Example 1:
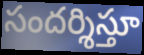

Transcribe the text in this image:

సందర్శిస్తూ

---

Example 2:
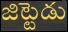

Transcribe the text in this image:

జిట్టెడు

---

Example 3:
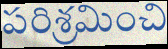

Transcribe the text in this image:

పరిశ్రమించి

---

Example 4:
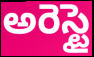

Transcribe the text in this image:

అరెస్టై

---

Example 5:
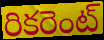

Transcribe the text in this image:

రికరెంట్